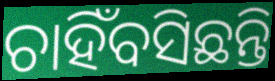
ଚାହିଁବସିଛନ୍ତି